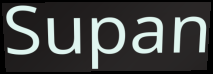
Supan